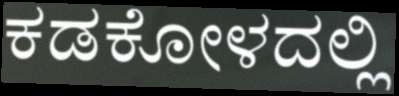
ಕಡಕೋಳದಲ್ಲಿ